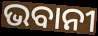
ଭବାନୀ